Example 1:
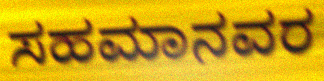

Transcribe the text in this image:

ಸಹಮಾನವರ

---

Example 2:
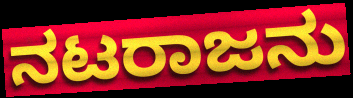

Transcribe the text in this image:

ನಟರಾಜನು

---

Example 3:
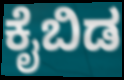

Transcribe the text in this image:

ಕೈಬಿಡ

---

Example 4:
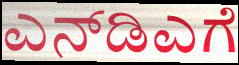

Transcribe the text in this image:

ಎನ್‌ಡಿಎಗೆ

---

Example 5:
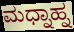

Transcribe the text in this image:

ಮಧ್ನಾಹ್ನ